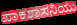
ಪಾಕಶಾಸನಿಯು